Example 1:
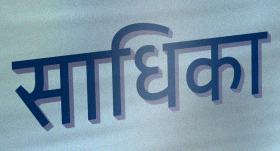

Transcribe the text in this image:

साधिका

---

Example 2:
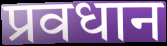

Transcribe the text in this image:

प्रवधान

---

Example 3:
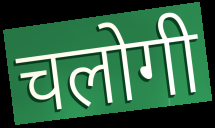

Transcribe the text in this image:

चलोगी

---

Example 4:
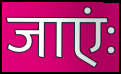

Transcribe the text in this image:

जाएंः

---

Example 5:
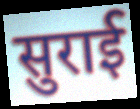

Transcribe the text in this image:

सुराई